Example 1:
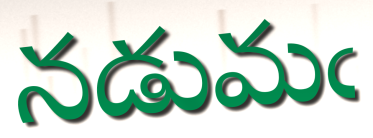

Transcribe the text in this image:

నడుమఁ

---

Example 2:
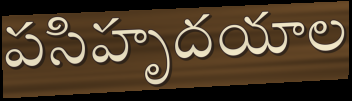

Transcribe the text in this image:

పసిహృదయాల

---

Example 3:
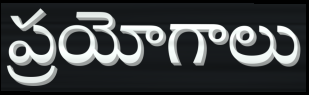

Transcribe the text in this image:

ప్రయోగాలు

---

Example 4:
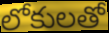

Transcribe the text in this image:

లోకులతో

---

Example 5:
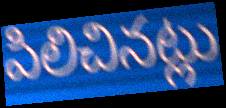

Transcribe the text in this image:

పిలిచినట్లు